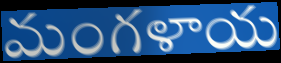
మంగళాయ